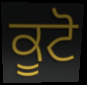
ਕੂਟੋ